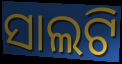
ସାଲଟି